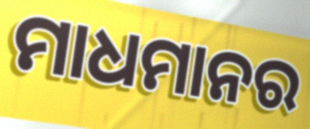
ମାଧମାନର